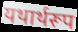
यथार्थरूप